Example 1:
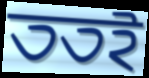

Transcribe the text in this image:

ততই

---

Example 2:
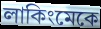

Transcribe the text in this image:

লাকিংমেকে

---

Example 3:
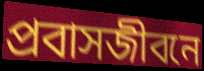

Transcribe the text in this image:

প্রবাসজীবনে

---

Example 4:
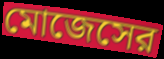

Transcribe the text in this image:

মোজেসের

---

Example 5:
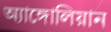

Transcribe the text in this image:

অ্যাঙ্গোলিয়ান